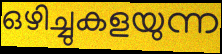
ഒഴിച്ചുകളയുന്ന